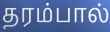
தரம்பால்